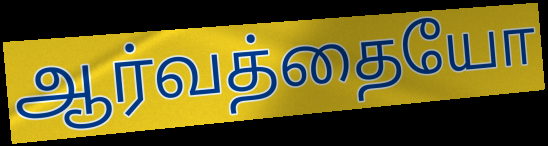
ஆர்வத்தையோ